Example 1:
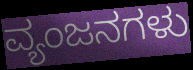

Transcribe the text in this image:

ವ್ಯಂಜನಗಳು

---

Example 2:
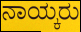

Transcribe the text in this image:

ನಾಯ್ಕರು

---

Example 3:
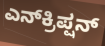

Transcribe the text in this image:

ಎನ್‌ಕ್ರಿಪ್ಷನ್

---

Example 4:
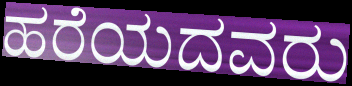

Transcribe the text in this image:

ಹರೆಯದವರು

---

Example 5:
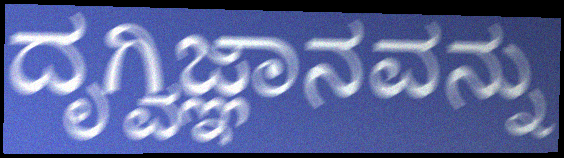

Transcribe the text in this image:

ದೃಗ್ವಿಜ್ಞಾನವನ್ನು